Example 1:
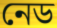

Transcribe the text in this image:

নেড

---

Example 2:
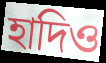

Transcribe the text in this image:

হাদিও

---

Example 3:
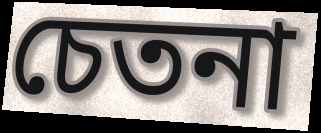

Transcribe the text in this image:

চেতনা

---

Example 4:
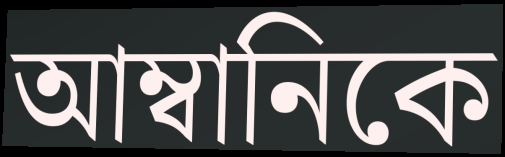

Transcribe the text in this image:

আম্বানিকে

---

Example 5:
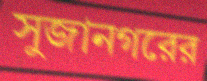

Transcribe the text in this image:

সুজানগরের